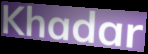
Khadar